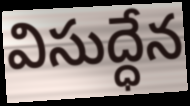
విసుద్ధేన